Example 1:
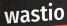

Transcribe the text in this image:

wastio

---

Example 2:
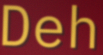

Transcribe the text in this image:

Deh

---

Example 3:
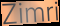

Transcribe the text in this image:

Zimri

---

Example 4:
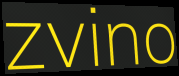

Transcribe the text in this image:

zvino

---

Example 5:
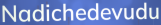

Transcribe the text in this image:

Nadichedevudu